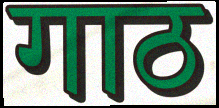
गाठ